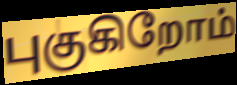
புகுகிறோம்